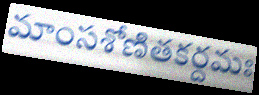
మాంసశోణితకర్దమః